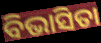
ବିଭାସିତା